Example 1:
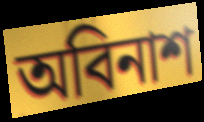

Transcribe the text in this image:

অবিনাশ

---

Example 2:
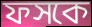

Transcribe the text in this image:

ফসকে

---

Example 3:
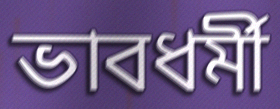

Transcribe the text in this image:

ভাবধর্মী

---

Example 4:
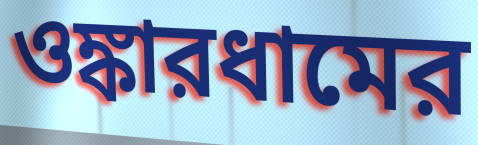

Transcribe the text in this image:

ওঙ্কারধামের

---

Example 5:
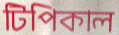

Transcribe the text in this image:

টিপিকাল